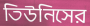
তিউনিসের